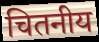
चितनीय